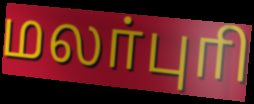
மலர்புரி